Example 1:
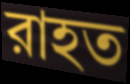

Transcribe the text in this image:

রাহত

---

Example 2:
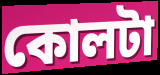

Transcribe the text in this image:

কোলটা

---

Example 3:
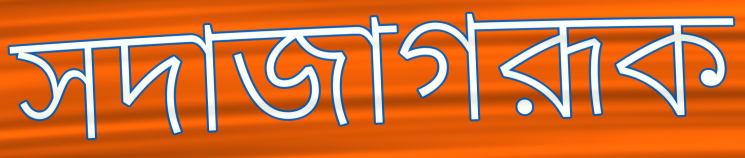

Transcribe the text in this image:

সদাজাগরূক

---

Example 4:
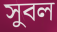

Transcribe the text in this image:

সুবল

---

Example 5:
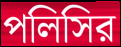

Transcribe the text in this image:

পলিসির